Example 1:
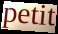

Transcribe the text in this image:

petit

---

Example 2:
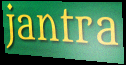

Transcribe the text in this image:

jantra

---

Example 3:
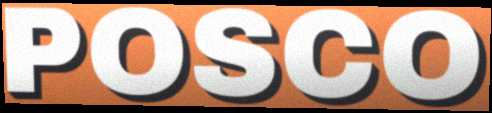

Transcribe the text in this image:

POSCO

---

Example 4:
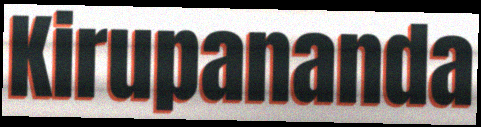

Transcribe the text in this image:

Kirupananda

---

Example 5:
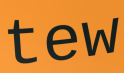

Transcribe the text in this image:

tew